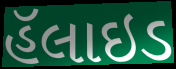
હૅલાઇડ